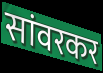
सांवरकर